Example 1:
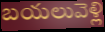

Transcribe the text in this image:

బయలువెళ్లి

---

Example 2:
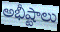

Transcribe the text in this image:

అభీష్టాలు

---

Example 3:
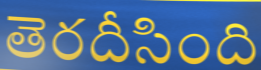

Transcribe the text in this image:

తెరదీసింది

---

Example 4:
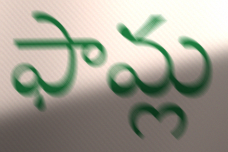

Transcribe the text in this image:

ఫామ్ల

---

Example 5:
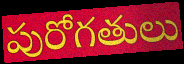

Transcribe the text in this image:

పురోగతులు